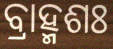
ବ୍ରାହ୍ମଶଃ